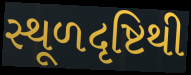
સ્થૂળદૃષ્ટિથી